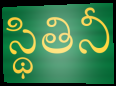
స్థితినీ